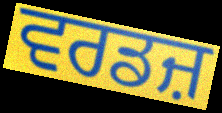
ਵਰਡਜ਼